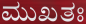
ಮುಖತಃ